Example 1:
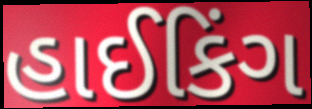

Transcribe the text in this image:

હાઈકિંગ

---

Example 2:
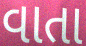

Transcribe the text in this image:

વાતા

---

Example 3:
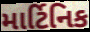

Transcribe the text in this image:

માર્ટિનિક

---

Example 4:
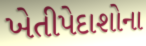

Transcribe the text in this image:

ખેતીપેદાશોના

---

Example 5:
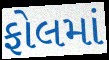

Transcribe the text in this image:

ફોલમાં